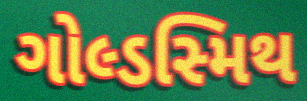
ગોલ્ડસ્મિથ